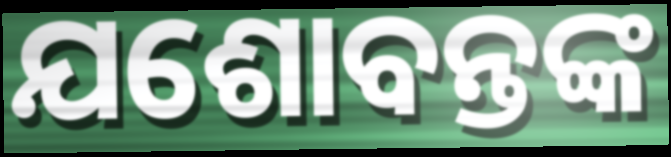
ଯଶୋବନ୍ତଙ୍କ